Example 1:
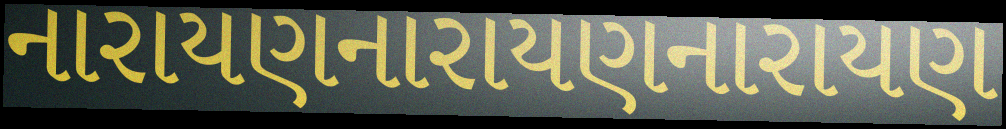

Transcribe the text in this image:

નારાયણનારાયણનારાયણ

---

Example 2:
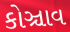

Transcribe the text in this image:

કોઞ્ચાવ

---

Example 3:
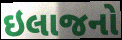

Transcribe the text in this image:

ઇલાજનો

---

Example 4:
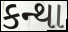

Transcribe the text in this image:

કન્થા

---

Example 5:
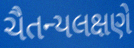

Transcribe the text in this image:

ચૈતન્યલક્ષણે